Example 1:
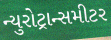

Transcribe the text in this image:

ન્યુરોટ્રાન્સમીટર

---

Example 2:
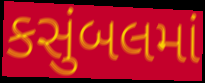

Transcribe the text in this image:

કસુંબલમાં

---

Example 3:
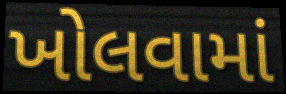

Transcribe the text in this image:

ખોલવામાં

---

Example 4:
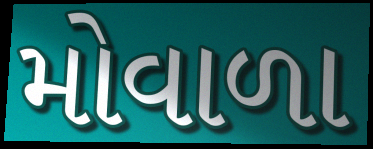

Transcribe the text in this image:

મોવાળા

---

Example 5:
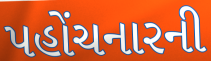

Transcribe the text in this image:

પહોંચનારની